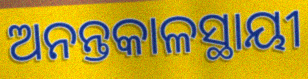
ଅନନ୍ତକାଳସ୍ଥାୟୀ